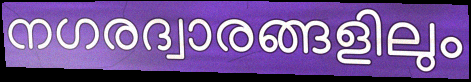
നഗരദ്വാരങ്ങളിലും